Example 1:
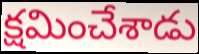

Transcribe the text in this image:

క్షమించేశాడు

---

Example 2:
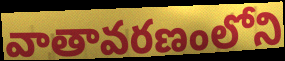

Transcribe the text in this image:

వాతావరణంలోని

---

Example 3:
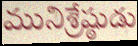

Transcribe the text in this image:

మునిశ్రేష్ఠుడు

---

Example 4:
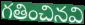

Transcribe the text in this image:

గతించినవి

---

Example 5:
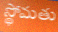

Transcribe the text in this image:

స్థోమతు